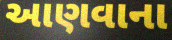
આણવાના